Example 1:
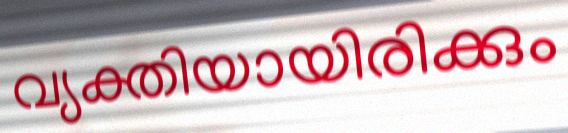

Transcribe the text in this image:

വ്യക്തിയായിരിക്കും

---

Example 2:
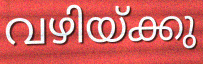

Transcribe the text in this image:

വഴിയ്ക്കു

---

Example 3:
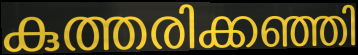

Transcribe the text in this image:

കുത്തരിക്കഞ്ഞി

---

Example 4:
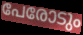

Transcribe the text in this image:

പേരോടും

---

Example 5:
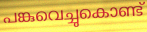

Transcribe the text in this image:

പങ്കുവെച്ചുകൊണ്ട്